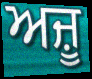
ਅਜ਼ੂ